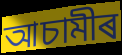
আচামীৰ